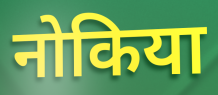
नोकिया